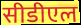
सीडीएल